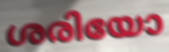
ശരിയോ